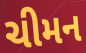
ચીમન